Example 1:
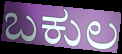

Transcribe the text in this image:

ಬಕುಲ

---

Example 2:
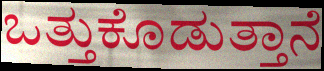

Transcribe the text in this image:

ಒತ್ತುಕೊಡುತ್ತಾನೆ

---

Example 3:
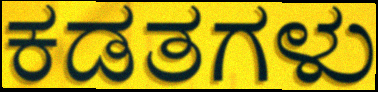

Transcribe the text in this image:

ಕಡತಗಳು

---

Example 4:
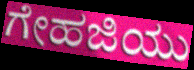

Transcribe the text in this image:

ಗೇಹಜಿಯು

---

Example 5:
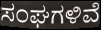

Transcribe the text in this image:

ಸಂಘಗಳಿವೆ